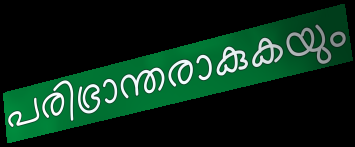
പരിഭ്രാന്തരാകുകയും